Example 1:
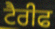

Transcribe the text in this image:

ਟੈਰੀਫ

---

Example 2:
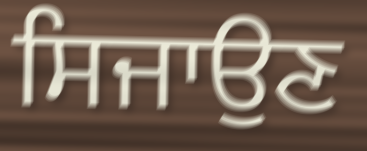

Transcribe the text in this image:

ਸਿਜਾਉਣ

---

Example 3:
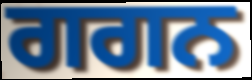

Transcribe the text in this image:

ਗਗਨ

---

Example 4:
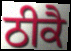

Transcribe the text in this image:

ਠੀਕੈ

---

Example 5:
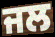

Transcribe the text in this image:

ਜਲ